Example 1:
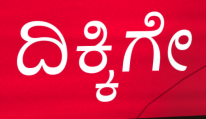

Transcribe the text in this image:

ದಿಕ್ಕಿಗೇ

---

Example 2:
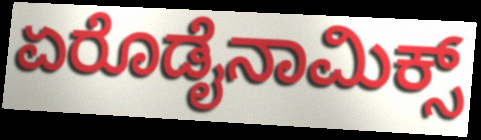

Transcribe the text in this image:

ಏರೊಡೈನಾಮಿಕ್ಸ್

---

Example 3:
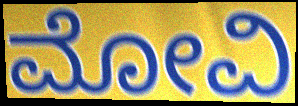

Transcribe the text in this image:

ಮೋವಿ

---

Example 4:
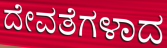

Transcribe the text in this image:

ದೇವತೆಗಳಾದ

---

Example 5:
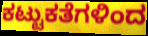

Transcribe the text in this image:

ಕಟ್ಟುಕತೆಗಳಿಂದ